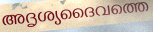
അദൃശ്യദൈവത്തെ